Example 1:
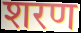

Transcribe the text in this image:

शरण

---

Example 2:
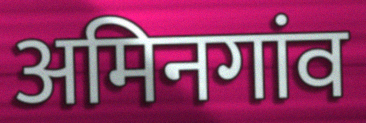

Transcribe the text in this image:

अमिनगांव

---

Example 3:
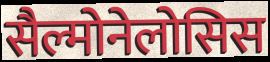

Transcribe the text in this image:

सैल्मोनेलोसिस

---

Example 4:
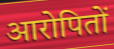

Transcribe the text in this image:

आरोपितों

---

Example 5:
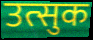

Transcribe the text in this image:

उत्‍सुक